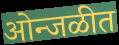
ओन्जळीत